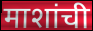
माशांची